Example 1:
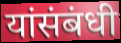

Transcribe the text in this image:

यांसंबंधी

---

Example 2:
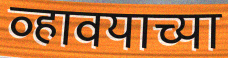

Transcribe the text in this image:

व्हावयाच्या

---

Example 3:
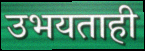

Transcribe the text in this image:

उभयताही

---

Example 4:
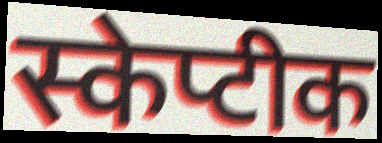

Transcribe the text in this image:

स्केप्टीक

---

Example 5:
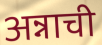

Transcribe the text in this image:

अन्नाची